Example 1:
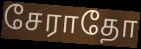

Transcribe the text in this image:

சேராதோ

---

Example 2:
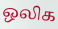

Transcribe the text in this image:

ஒலிக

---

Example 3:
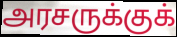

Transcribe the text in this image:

அரசருக்குக்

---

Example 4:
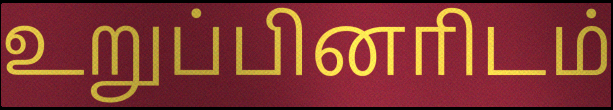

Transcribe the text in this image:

உறுப்பினரிடம்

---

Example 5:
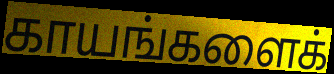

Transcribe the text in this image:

காயங்களைக்